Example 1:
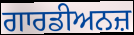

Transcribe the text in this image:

ਗਾਰਡੀਅਨਜ਼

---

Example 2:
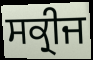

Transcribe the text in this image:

ਸਕ੍ਰੀਜ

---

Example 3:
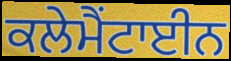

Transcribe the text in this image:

ਕਲੇਮੈਂਟਾਈਨ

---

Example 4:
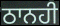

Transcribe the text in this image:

ਠਾਨਹੀ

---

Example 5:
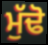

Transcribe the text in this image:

ਮੁੱਢੋ